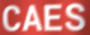
CAES